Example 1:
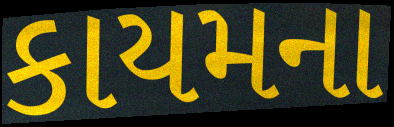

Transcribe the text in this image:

કાયમના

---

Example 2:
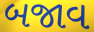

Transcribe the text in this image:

બજાવ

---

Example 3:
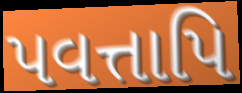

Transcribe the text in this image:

પવત્તાપિ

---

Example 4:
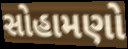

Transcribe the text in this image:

સોહામણો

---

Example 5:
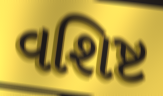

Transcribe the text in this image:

વશિષ્ટ